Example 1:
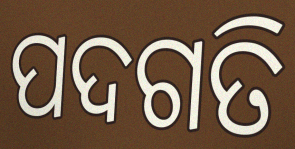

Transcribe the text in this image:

ପଦଗତି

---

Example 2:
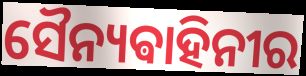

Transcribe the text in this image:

ସୈନ୍ୟଵାହିନୀର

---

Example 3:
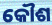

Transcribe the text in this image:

କୌଶ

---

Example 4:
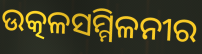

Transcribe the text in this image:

ଉତ୍କଳସମ୍ମିଳନୀର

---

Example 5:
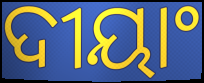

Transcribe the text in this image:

ଦୀୟାଂ